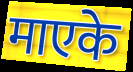
माएके